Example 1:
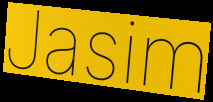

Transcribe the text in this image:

Jasim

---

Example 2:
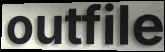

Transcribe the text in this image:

outfile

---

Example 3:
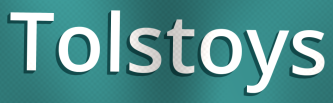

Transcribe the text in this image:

Tolstoys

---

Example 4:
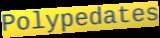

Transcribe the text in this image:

Polypedates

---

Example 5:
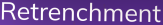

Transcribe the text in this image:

Retrenchment